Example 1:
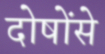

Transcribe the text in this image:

दोषोंसे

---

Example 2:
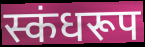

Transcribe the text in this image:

स्कंधरूप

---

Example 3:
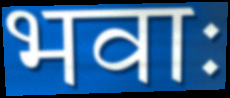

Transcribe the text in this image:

भवाः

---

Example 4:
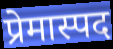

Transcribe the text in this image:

प्रेमास्पद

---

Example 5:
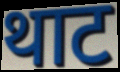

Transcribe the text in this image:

थाट